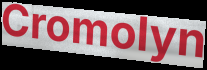
Cromolyn